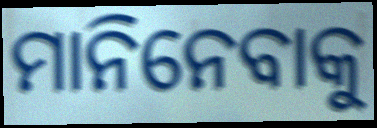
ମାନିନେବାକୁ